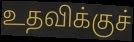
உதவிக்குச்